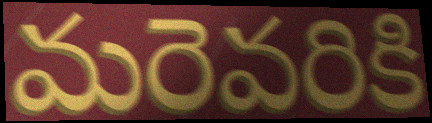
మరెవరికి